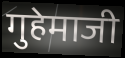
गुहेमाजी